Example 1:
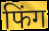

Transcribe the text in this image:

फिंग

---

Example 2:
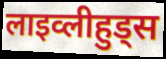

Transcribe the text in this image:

लाइव्लीहुड्स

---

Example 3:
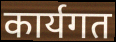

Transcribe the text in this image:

कार्यगत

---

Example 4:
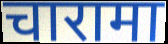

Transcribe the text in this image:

चारामा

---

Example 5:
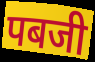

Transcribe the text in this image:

पबजी